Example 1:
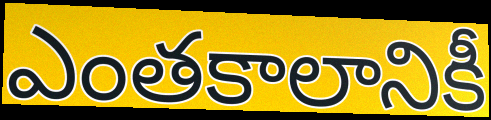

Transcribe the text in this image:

ఎంతకాలానికీ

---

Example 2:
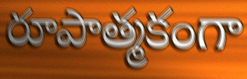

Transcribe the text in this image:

రూపాత్మకంగా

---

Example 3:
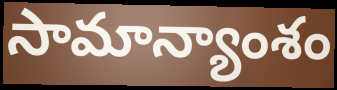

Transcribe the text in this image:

సామాన్యాంశం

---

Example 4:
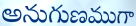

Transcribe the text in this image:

అనుగుణముగా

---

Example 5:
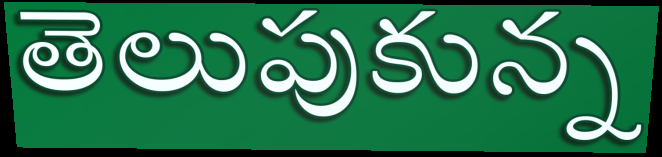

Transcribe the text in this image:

తెలుపుకున్న